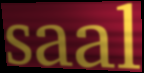
saal